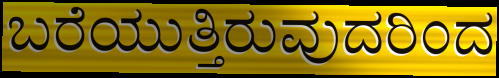
ಬರೆಯುತ್ತಿರುವುದರಿಂದ